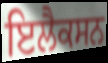
ਇਲੈਕਸਨ